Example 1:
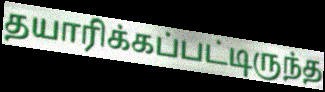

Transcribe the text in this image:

தயாரிக்கப்பட்டிருந்த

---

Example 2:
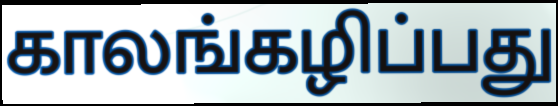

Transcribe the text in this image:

காலங்கழிப்பது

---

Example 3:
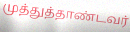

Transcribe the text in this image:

முத்துத்தாண்டவர்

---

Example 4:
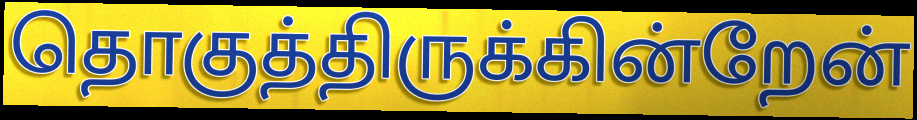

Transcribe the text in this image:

தொகுத்திருக்கின்றேன்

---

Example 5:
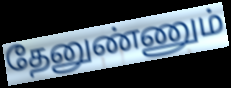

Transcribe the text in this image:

தேனுண்ணும்